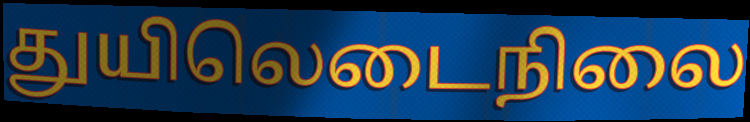
துயிலெடைநிலை